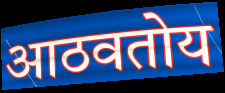
आठवतोय